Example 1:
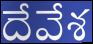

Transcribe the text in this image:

దేవేశ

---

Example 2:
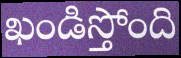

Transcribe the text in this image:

ఖండిస్తోంది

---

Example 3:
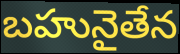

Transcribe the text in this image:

బహునైతేన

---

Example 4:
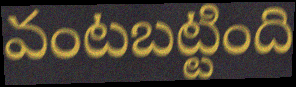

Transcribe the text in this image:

వంటబట్టింది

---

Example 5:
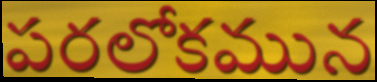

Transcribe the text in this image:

పరలోకమున